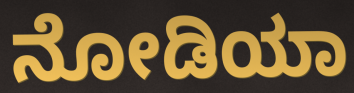
ನೋಡಿಯಾ